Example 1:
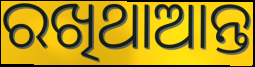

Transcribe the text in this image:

ରଖିଥାଆନ୍ତ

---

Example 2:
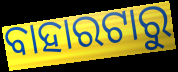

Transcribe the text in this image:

ବାହାରଟାରୁ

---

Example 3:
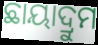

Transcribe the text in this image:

ଛାୟାଦ୍ରୁମ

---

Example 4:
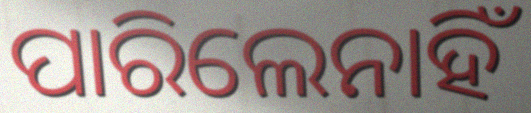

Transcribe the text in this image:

ପାରିଲେନାହିଁ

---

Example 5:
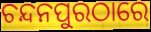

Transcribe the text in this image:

ଚନ୍ଦନପୁରଠାରେ